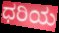
ಧರಿಯ